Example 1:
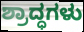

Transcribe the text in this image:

ಶ್ರಾದ್ಧಗಳು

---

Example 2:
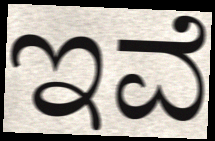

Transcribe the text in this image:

ಇವೆ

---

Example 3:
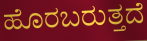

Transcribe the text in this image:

ಹೊರಬರುತ್ತದೆ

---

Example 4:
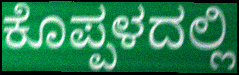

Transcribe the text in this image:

ಕೊಪ್ಪಳದಲ್ಲಿ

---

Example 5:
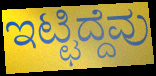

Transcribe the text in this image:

ಇಟ್ಟಿದ್ದೆವು